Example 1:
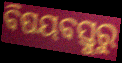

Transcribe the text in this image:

ବିଷୟବସ୍ତୁରୁ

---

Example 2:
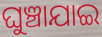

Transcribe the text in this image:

ଘୁଞ୍ଚାଯାଇ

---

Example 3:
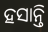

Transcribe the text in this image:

ହସାନ୍ତି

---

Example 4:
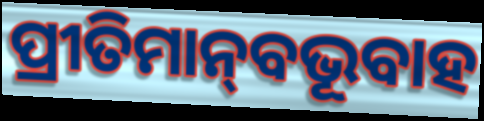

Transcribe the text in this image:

ପ୍ରୀତିମାନ୍‌ବଭୂବାହ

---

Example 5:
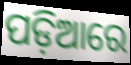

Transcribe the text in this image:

ପଡ଼ିଆରେ